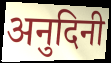
अनुदिनी